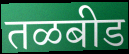
तळबीड